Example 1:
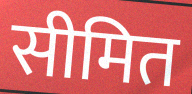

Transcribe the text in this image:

सीमित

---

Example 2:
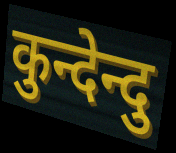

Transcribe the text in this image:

कुन्देन्दु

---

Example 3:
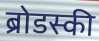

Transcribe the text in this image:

ब्रोडस्की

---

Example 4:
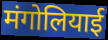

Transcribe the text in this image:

मंगोलियाई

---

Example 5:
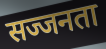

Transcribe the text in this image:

सज्जनता